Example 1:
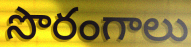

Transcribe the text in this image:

సొరంగాలు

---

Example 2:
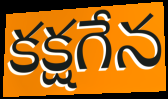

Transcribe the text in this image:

కక్షగేన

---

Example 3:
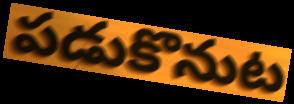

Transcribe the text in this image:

పడుకొనుట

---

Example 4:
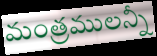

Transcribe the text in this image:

మంత్రములన్నీ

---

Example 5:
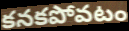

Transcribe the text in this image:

కనకపోవటం